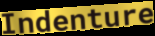
Indenture